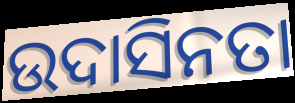
ଉଦାସିନତା